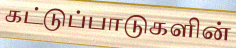
கட்டுப்பாடுகளின்